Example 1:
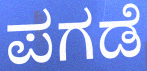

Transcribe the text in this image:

ಪಗಡೆ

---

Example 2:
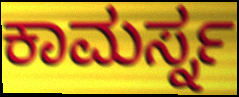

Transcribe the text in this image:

ಕಾಮರ್ಸ್ನ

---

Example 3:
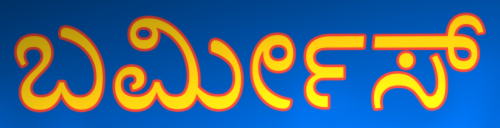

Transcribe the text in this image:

ಬರ್ಮೀಸ್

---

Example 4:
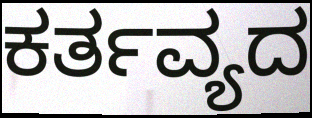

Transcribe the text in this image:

ಕರ್ತವ್ಯದ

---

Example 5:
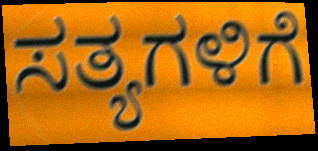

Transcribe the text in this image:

ಸತ್ಯಗಳಿಗೆ